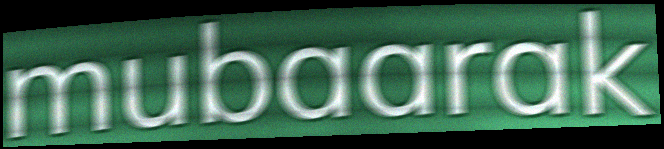
mubaarak